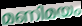
മണിമയം